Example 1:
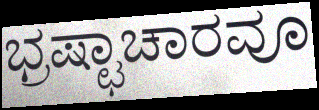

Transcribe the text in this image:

ಭ್ರಷ್ಟಾಚಾರವೂ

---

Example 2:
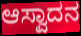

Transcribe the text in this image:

ಆಸ್ವಾದನ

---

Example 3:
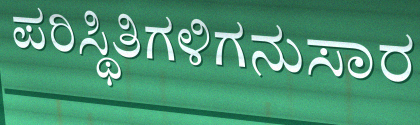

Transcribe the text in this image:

ಪರಿಸ್ಥಿತಿಗಳಿಗನುಸಾರ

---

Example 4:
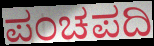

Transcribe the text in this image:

ಪಂಚಪದಿ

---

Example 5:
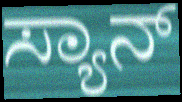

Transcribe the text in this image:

ಸ್ಯಾನ್